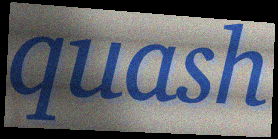
quash